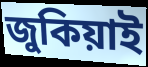
জুকিয়াই